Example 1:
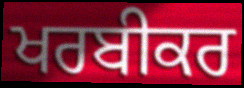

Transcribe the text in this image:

ਖਰਬੀਕਰ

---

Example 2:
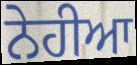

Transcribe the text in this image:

ਨੇਹੀਆ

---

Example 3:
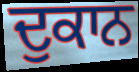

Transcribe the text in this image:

ਦੁਕਾਨ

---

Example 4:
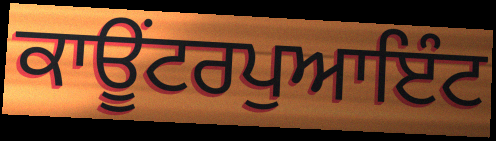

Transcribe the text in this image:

ਕਾਊਂਟਰਪੁਆਇੰਟ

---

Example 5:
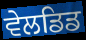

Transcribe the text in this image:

ਵੇਲਡਿਡ